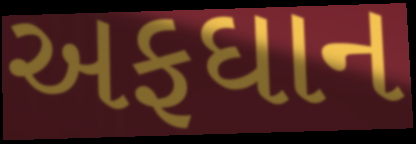
અફઘાન